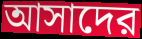
আসাদের